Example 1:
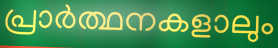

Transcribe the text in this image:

പ്രാർത്ഥനകളാലും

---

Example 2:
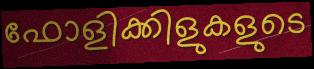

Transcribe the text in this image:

ഫോളിക്കിളുകളുടെ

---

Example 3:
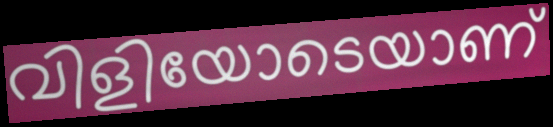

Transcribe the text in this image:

വിളിയോടെയാണ്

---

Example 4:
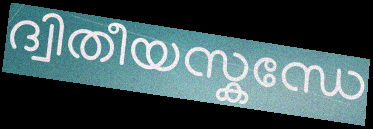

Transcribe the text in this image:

ദ്വിതീയസ്കന്ധേ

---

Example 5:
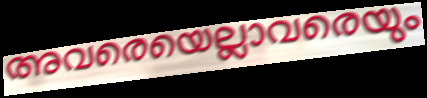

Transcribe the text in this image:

അവരെയെല്ലാവരെയും